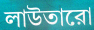
লাউতারো